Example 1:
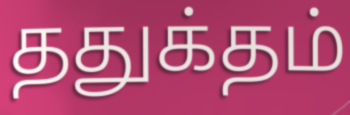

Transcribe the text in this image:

ததுக்தம்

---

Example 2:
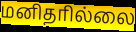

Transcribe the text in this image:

மனிதரில்லை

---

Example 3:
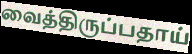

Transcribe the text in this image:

வைத்திருப்பதாய்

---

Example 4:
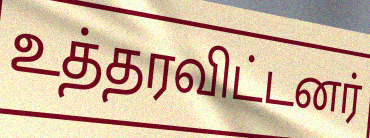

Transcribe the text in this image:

உத்தரவிட்டனர்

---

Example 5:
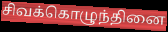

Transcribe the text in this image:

சிவக்கொழுந்தினை